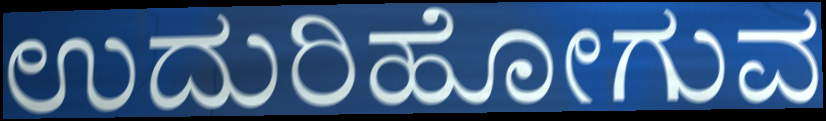
ಉದುರಿಹೋಗುವ